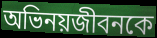
অভিনয়জীবনকে